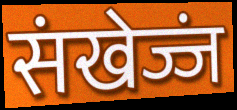
संखेज्जं